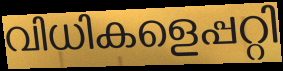
വിധികളെപ്പറ്റി